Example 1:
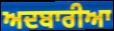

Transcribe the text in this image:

ਅਦਬਾਰੀਆ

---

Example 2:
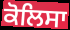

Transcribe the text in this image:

ਕੋਲਿਸਾ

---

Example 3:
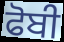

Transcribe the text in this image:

ਫੋਬੀ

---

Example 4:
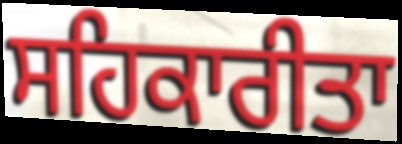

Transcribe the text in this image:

ਸਹਿਕਾਰੀਤਾ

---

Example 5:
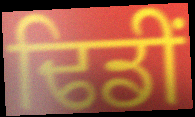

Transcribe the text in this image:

ਢਿਡੀਂ